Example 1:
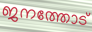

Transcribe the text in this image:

ജനത്തോട്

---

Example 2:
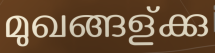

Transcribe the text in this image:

മുഖങ്ങള്ക്കു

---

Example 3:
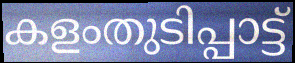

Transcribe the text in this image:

കളംതുടിപ്പാട്ട്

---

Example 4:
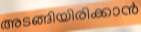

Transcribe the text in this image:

അടങ്ങിയിരിക്കാൻ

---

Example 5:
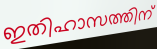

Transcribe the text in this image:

ഇതിഹാസത്തിന്